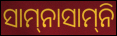
ସାମ୍‍ନାସାମ୍‍ନି